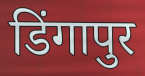
डिंगापुर